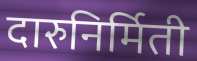
दारुनिर्मिती